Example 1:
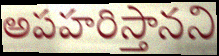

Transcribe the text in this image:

అపహరిస్తానని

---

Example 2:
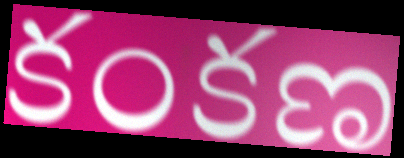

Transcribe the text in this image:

కంకణ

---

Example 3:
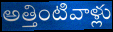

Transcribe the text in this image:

అత్తింటివాళ్లు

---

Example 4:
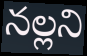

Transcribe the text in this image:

నల్లని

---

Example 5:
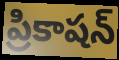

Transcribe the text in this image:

ప్రికాషన్